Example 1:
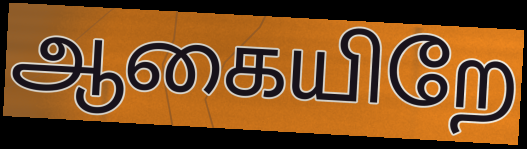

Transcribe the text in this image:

ஆகையிறே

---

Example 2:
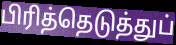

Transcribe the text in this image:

பிரித்தெடுத்துப்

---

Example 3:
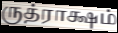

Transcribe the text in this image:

ருத்ராக்ஷம்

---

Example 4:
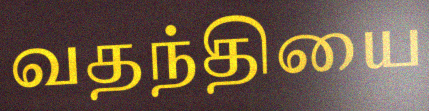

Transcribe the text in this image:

வதந்தியை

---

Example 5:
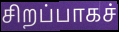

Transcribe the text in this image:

சிறப்பாகச்